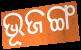
ଭୂଜଙ୍ଗ